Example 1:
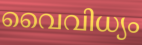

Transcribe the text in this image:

വൈവിധ്യം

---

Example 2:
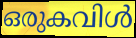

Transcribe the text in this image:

ഒരുകവിൾ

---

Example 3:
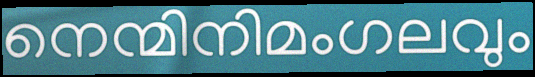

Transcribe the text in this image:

നെന്മിനിമംഗലവും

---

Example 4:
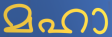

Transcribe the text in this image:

മഹാ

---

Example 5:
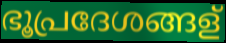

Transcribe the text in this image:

ഭൂപ്രദേശങ്ങള്